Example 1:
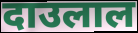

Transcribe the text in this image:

दाउलाल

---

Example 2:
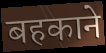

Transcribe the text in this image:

बहकाने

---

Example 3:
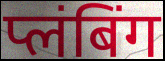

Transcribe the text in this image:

प्लंबिंग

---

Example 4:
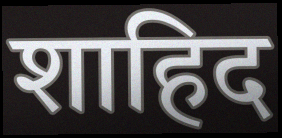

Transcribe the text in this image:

शाहिद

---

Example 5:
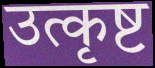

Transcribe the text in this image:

उत्कृष्ट